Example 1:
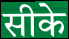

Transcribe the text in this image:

सीके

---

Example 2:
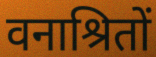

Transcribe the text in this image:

वनाश्रितों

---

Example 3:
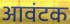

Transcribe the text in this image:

आवंटक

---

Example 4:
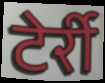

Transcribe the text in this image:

टेर्री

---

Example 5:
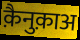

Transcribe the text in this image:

क़ैनुक़ाअ